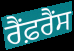
ਰੈਂਫ਼ਰੈਂਸ